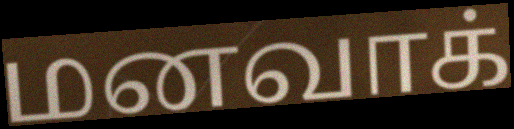
மனவாக்